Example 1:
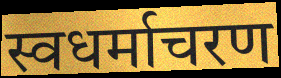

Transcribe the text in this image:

स्वधर्माचरण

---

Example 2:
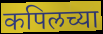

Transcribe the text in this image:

कपिलच्या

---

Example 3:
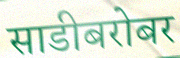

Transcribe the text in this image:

साडीबरोबर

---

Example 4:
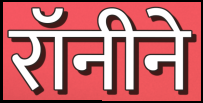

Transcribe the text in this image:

रॉनीने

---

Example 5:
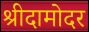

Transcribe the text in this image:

श्रीदामोदर